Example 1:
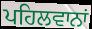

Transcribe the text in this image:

ਪਹਿਲਵਾਨਾਂ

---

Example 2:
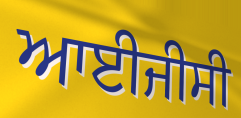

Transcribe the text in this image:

ਆਈਜੀਸੀ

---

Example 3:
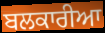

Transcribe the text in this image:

ਬਲਕਾਰੀਆ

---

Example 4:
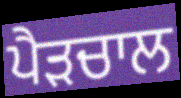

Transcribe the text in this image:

ਪੈੜਚਾਲ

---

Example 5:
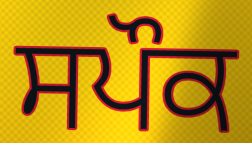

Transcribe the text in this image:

ਸਪੌਕ